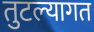
तुटल्यागत